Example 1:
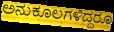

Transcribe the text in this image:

ಅನುಕೂಲಗಳಿದ್ದರೂ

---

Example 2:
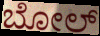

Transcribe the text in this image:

ಬೋಲ್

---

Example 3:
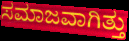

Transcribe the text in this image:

ಸಮಾಜವಾಗಿತ್ತು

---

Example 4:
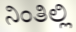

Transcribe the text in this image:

ನಿಂತಿಲ್ಲಿ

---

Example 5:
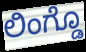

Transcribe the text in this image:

ಲಿಂಗ್ಡೊ